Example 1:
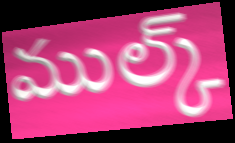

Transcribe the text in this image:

ముల్క్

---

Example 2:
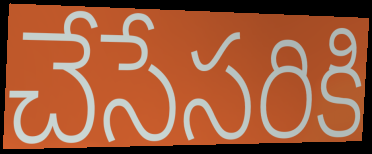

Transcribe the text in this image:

చేసేసరికి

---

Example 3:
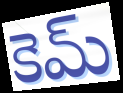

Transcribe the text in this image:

కెమ్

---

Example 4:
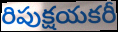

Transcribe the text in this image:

రిపుక్షయకరీ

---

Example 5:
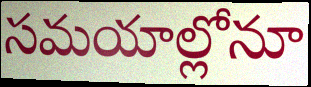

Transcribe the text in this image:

సమయాల్లోనూ